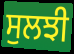
ਸੁਲਝੀ